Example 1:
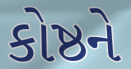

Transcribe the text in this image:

કોષ્ઠને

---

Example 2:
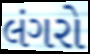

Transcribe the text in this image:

લંગરો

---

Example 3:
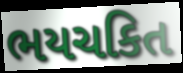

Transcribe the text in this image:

ભયચકિત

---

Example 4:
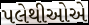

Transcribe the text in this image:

પલેથીઓએ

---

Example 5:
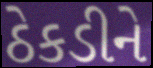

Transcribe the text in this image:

ઠેકડીને